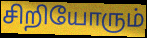
சிறியோரும்